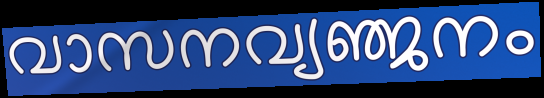
വാസനവ്യഞ്ജനം